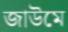
জাউমে